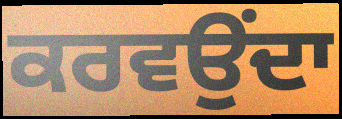
ਕਰਵਉਂਦਾ